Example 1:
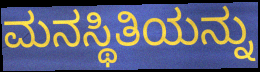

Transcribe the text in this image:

ಮನಸ್ಥಿತಿಯನ್ನು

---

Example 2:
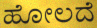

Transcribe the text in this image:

ಹೋಲದೆ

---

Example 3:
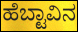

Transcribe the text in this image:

ಹೆಬ್ಟಾವಿನ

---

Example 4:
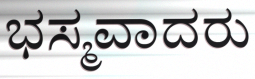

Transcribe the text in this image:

ಭಸ್ಮವಾದರು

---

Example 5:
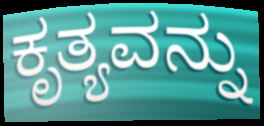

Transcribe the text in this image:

ಕೃತ್ಯವನ್ನು